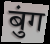
बुंग